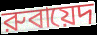
রুবায়েদ